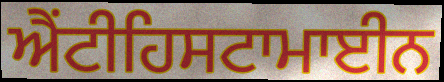
ਐਂਟੀਹਿਸਟਾਮਾਈਨ